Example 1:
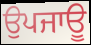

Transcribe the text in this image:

ਉਪਜਾਊ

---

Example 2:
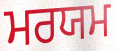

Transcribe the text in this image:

ਮਰਯਮ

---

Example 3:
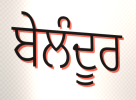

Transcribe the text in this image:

ਬੇਲੰਦੂਰ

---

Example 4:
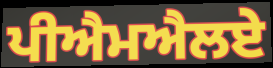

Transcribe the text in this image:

ਪੀਐਮਐਲਏ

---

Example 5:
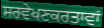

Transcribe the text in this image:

ਸਰਵੇਖਣਕਰਤਾਵਾਂ